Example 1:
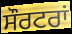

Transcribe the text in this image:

ਸੌਰਟਰਾਂ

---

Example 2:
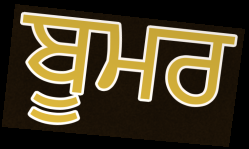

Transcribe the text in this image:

ਬੂਮਰ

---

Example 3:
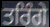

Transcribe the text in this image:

ਤਰਿੰਗੇ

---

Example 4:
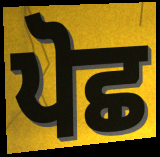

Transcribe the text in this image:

ਪੋਛ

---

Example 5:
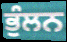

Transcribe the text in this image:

ਭੁੰਲਨ